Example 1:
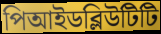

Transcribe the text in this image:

পিআইডব্লিউটিটি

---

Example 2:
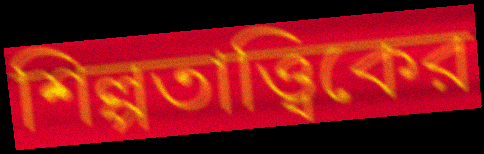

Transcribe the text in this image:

শিল্পতাত্ত্বিকের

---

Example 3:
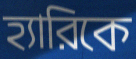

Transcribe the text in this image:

হ্যারিকে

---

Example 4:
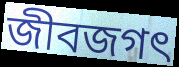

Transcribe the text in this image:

জীবজগৎ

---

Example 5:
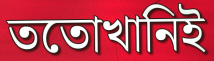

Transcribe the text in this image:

ততোখানিই